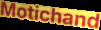
Motichand